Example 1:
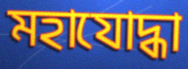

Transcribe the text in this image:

মহাযোদ্ধা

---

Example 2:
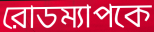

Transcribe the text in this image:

রোডম্যাপকে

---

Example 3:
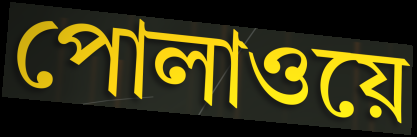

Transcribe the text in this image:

পোলাওয়ে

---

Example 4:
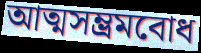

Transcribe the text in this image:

আত্মসম্ভ্রমবোধ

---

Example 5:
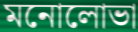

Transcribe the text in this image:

মনোলোভা